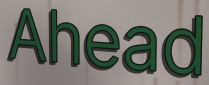
Ahead